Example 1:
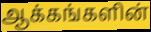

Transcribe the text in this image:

ஆக்கங்களின்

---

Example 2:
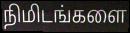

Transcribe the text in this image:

நிமிடங்களை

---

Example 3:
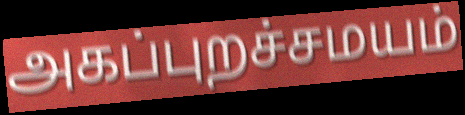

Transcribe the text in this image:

அகப்புறச்சமயம்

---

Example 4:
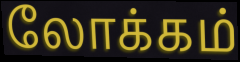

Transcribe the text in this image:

லோக்கம்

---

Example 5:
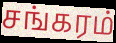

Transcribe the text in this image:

சங்கரம்